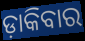
ଡ଼ାକିବାର